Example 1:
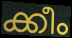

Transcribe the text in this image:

ക്കീം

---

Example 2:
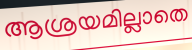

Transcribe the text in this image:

ആശ്രയമില്ലാതെ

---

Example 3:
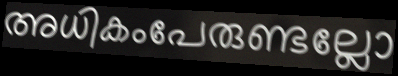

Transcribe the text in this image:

അധികംപേരുണ്ടല്ലോ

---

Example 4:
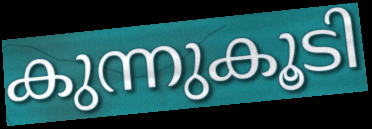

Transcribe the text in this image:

കുന്നുകൂടി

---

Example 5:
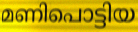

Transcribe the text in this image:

മണിപൊട്ടിയ